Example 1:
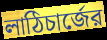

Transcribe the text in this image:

লাঠিচার্জের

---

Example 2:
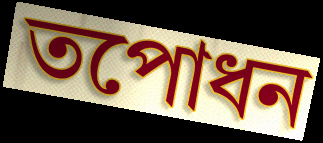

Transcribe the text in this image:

তপোধন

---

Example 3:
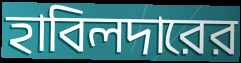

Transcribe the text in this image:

হাবিলদারের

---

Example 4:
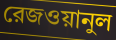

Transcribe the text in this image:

রেজওয়ানুল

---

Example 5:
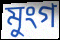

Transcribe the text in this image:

মুংগ